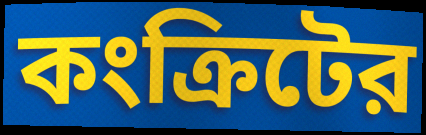
কংক্রিটের